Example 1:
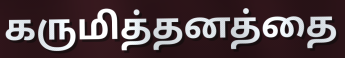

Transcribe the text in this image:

கருமித்தனத்தை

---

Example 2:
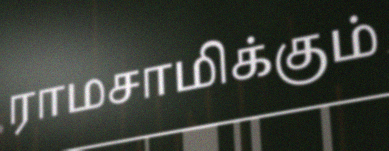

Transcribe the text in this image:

ராமசாமிக்கும்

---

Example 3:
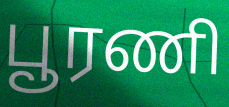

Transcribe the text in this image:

பூரணி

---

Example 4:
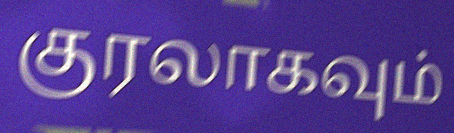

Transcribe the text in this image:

குரலாகவும்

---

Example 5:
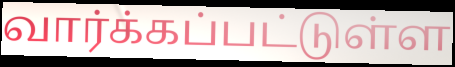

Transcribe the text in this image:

வார்க்கப்பட்டுள்ள